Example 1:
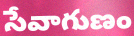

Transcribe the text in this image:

సేవాగుణం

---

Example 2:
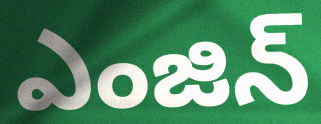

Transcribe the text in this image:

ఎంజిన్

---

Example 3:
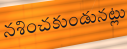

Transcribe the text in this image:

నశించకుండునట్లు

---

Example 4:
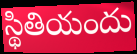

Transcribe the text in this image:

స్థితియందు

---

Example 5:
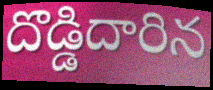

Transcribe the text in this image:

దొడ్డిదారిన